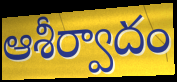
ఆశీర్వాదం